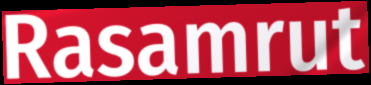
Rasamrut